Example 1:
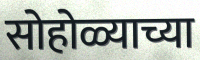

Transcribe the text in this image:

सोहोळ्याच्या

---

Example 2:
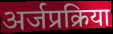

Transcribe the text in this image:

अर्जप्रक्रिया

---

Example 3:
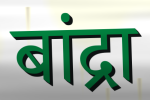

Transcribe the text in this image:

बांद्रा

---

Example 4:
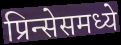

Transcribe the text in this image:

प्रिन्सेसमध्ये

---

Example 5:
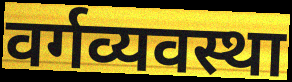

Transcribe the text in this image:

वर्गव्यवस्था